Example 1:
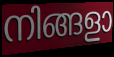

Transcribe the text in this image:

നിങ്ങളാ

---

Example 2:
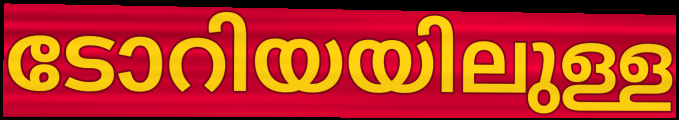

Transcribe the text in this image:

ടോറിയയിലുള്ള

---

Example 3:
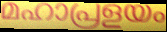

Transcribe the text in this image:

മഹാപ്രളയം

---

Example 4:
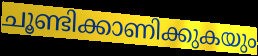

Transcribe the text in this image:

ചൂണ്ടിക്കാണിക്കുകയും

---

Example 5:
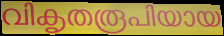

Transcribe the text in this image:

വികൃതരൂപിയായ